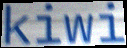
kiwi